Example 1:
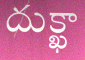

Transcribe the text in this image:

దుక్ఖా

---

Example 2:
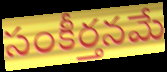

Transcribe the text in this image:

సంకీర్తనమే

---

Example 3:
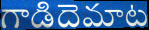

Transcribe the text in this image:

గాడిదెమాట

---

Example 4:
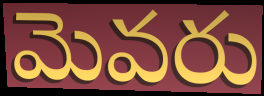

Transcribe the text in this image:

మెవరు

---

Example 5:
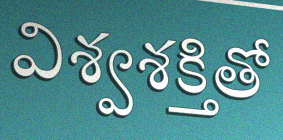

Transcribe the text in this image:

విశ్వశక్తితో